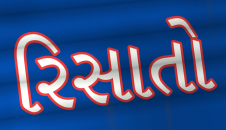
રિસાતો